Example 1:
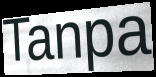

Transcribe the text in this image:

Tanpa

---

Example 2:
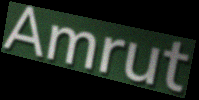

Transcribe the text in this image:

Amrut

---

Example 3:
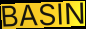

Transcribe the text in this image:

BASIN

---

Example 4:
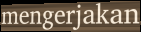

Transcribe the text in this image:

mengerjakan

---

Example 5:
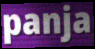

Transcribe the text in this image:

panja